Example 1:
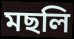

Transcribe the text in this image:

মছলি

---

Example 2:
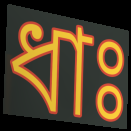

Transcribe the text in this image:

ধাঃ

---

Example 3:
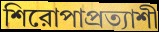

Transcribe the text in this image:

শিরোপাপ্রত্যাশী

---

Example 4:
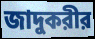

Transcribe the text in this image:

জাদুকরীর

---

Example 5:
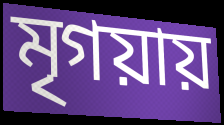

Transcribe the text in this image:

মৃগয়ায়